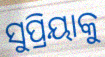
ସୁପ୍ରିୟାକୁ